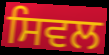
ਸਿਵਲ